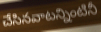
చేసినవాటన్నింటినీ